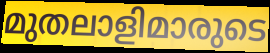
മുതലാളിമാരുടെ